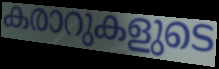
കരാറുകളുടെ